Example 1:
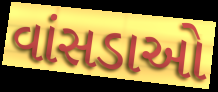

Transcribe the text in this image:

વાંસડાઓ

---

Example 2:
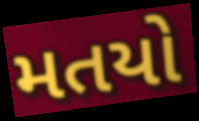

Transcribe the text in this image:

મતયો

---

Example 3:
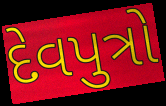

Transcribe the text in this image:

દેવપુત્રો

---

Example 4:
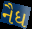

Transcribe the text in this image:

નૈધ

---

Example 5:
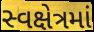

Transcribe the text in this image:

સ્વક્ષેત્રમાં